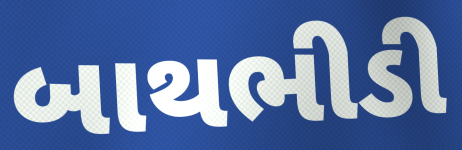
બાથભીડી